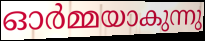
ഓർമ്മയാകുന്നു